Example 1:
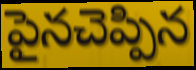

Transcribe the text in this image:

పైనచెప్పిన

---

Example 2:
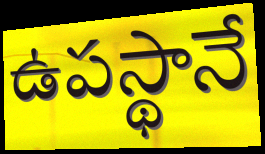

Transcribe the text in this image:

ఉపస్థానే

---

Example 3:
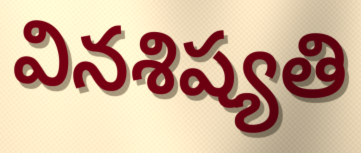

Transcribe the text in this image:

వినశిష్యతి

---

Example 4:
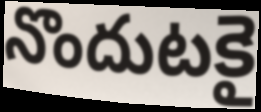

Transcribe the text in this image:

నొందుటకై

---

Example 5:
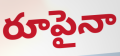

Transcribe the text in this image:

రూపైనా